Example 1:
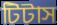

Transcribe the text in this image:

টিটাস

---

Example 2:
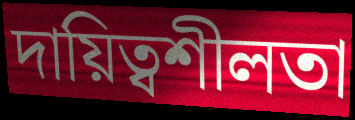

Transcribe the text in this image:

দায়িত্বশীলতা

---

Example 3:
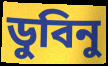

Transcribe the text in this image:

ডুবিনু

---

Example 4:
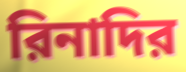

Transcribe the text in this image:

রিনাদির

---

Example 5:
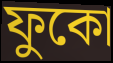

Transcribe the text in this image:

ফুকো